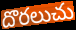
దొరలుచు